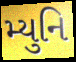
મ્યુનિ